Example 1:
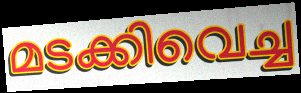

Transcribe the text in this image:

മടക്കിവെച്ച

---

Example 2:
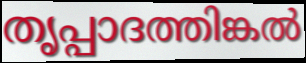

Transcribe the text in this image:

തൃപ്പാദത്തിങ്കൽ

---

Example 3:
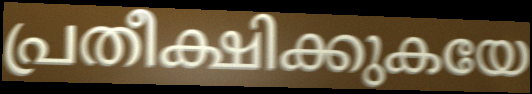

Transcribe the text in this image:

പ്രതീക്ഷിക്കുകയേ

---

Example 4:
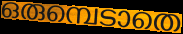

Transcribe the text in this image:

ഒരുമ്പെടാതെ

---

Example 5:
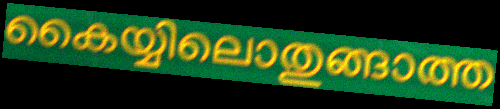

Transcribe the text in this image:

കൈയ്യിലൊതുങ്ങാത്ത